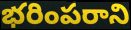
భరింపరాని